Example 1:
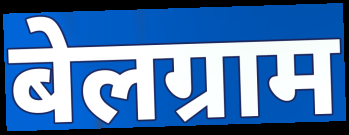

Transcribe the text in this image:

बेलग्राम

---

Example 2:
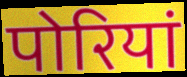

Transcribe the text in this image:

पोरियां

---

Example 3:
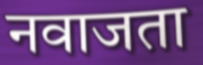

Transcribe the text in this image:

नवाजता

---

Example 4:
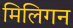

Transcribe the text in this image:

मिलिगन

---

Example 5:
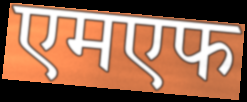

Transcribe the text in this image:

एमएफ